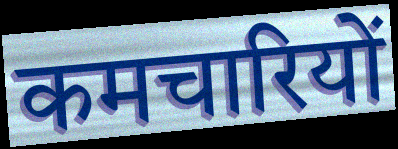
कमचारियों